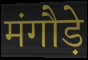
मंगौड़े